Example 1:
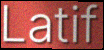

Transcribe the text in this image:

Latif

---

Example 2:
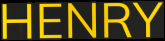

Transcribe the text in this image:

HENRY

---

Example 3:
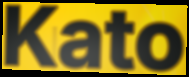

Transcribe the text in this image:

Kato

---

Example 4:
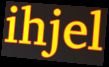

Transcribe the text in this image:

ihjel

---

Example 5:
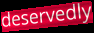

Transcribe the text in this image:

deservedly